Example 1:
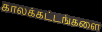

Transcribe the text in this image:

காலக்கட்டங்களை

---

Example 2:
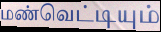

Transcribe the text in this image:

மண்வெட்டியும்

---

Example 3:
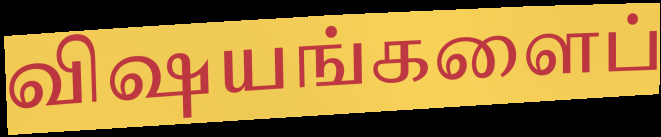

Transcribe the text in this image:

விஷயங்களைப்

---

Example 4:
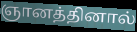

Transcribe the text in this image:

ஞானத்தினால்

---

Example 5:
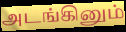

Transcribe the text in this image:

அடங்கினும்